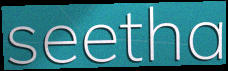
seetha